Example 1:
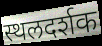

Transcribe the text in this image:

स्थलदर्शक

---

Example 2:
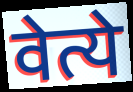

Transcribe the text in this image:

वेत्ये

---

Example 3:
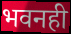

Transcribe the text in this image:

भवनही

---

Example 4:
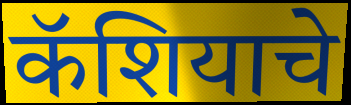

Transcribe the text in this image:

कॅशियाचे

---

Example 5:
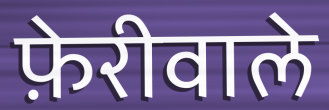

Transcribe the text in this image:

फ़ेरीवाले